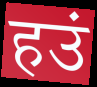
हउं